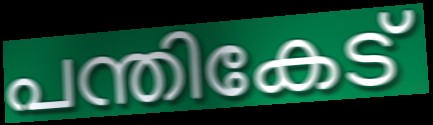
പന്തികേട്